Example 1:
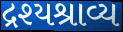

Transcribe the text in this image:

દ્રશ્યશ્રાવ્ય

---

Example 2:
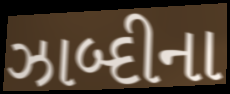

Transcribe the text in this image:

ઝાબ્દીના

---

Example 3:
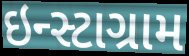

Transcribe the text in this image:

ઇન્સ્ટાગ્રામ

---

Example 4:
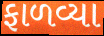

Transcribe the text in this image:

ફાળવ્યા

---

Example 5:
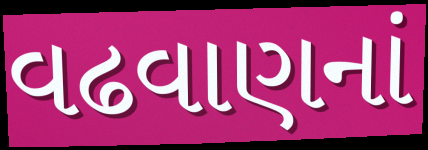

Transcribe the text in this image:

વઢવાણનાં